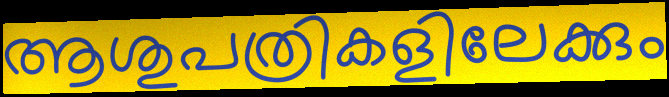
ആശുപത്രികളിലേക്കും